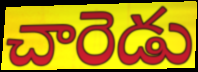
చారెడు